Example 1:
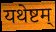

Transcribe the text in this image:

यथेष्टम्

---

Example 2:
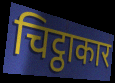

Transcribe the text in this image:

चिट्ठाकार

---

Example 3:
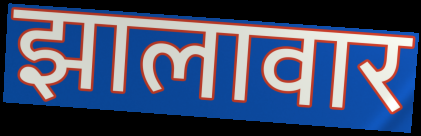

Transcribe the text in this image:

झालावार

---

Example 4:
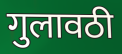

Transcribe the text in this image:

गुलावठी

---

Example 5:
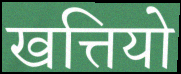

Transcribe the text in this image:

खत्तियो